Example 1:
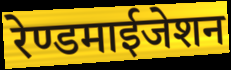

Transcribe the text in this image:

रेण्डमाईजेशन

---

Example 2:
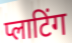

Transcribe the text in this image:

प्लाटिंग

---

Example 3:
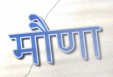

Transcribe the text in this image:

मौणा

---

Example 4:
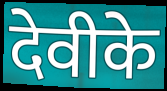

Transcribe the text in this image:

देवीके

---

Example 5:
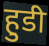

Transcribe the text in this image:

हुडी